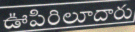
ఊపిరిలూదారు